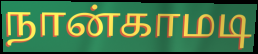
நான்காமடி